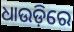
ଧାଉଡ଼ିରେ